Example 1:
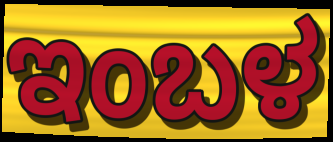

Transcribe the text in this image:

ಇಂಬಳ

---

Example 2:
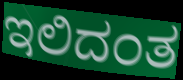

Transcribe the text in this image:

ಇಲಿದಂತ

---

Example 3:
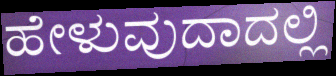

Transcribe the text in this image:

ಹೇಳುವುದಾದಲ್ಲಿ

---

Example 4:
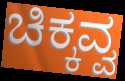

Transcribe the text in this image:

ಚಿಕ್ಕವ್ವ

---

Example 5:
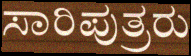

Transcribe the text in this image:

ಸಾರಿಪುತ್ರರು